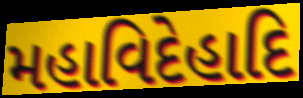
મહાવિદેહાદિ